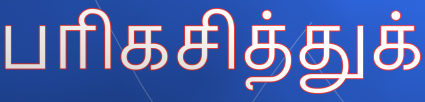
பரிகசித்துக்